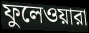
ফুলেওয়ারা